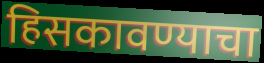
हिसकावण्याचा